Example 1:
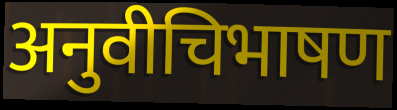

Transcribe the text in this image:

अनुवीचिभाषण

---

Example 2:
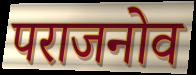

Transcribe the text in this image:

पराजनोव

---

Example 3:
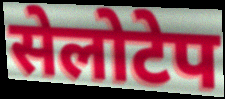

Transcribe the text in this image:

सेलोटेप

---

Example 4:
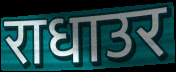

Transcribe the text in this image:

राधाउर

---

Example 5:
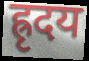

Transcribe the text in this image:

ह्रृदय